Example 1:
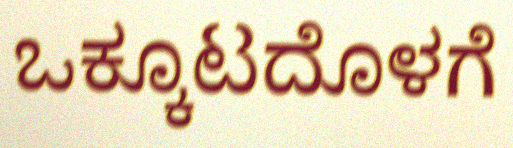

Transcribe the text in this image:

ಒಕ್ಕೂಟದೊಳಗೆ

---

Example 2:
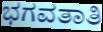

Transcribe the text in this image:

ಭಗವತಾತಿ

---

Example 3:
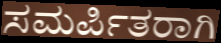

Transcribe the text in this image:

ಸಮರ್ಪಿತರಾಗಿ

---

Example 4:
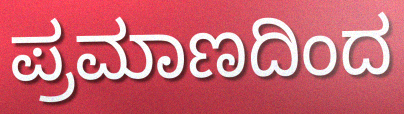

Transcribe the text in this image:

ಪ್ರಮಾಣದಿಂದ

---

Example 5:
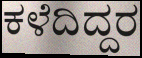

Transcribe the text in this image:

ಕಳೆದಿದ್ದರ